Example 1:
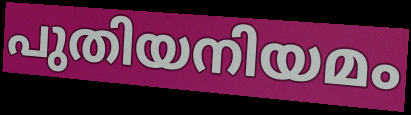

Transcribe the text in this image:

പുതിയനിയമം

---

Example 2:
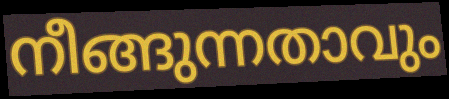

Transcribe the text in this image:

നീങ്ങുന്നതാവും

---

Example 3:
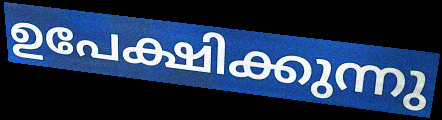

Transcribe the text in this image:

ഉപേക്ഷിക്കുന്നു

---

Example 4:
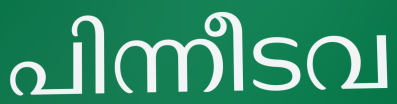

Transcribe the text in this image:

പിന്നീടവ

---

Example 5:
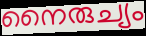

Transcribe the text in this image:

നൈരുച്യം